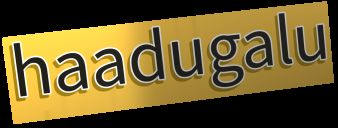
haadugalu